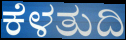
ಕೆಳತುದಿ